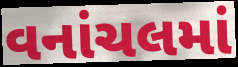
વનાંચલમાં